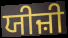
ਯੀਜ਼ੀ